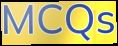
MCQs